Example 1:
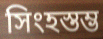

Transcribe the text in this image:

সিংহস্তম্ভ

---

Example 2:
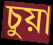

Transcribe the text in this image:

চুয়া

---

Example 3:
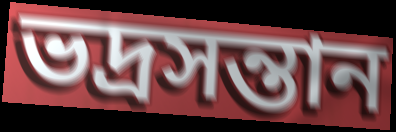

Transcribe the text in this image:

ভদ্রসন্তান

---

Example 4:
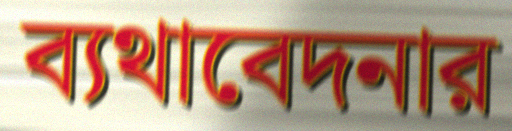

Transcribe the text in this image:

ব্যথাবেদনার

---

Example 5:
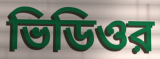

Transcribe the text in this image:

ভিডিওর